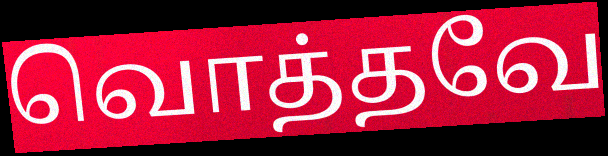
வொத்தவே